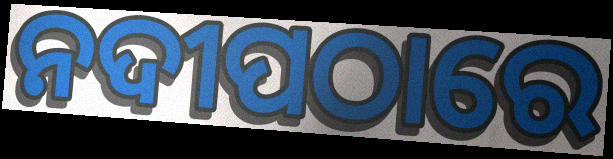
ନଦୀପଠାରେ